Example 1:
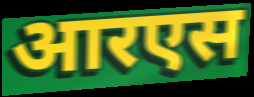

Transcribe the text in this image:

आरएस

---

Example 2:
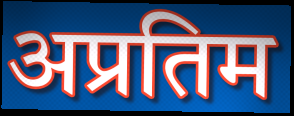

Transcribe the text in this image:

अप्रतिम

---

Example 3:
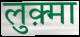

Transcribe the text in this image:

लुक़्मा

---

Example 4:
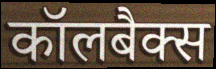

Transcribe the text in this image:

कॉलबैक्स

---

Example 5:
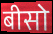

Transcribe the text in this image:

बीसो